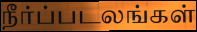
நீர்ப்படலங்கள்